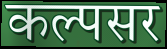
कल्पसर